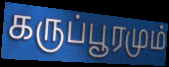
கருப்பூரமும்